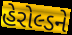
હેરોલ્ડને